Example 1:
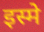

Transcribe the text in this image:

इस्मे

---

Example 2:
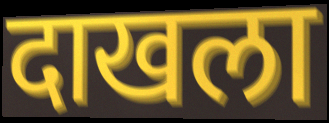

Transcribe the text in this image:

दाखला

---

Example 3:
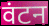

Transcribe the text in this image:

वंटन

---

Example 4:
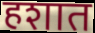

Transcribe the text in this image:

हशात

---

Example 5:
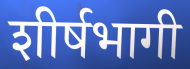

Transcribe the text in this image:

शीर्षभागी